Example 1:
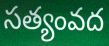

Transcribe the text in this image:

సత్యంవద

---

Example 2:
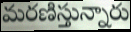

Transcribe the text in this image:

మరణిస్తున్నారు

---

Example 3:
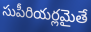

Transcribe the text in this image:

సుపీరియర్లమైతే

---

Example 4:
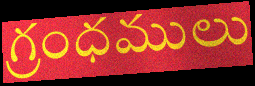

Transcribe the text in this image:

గ్రంధములు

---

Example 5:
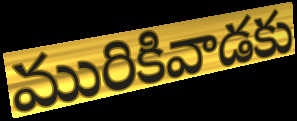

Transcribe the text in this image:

మురికివాడకు